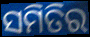
ସମିତିର